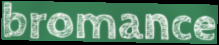
bromance